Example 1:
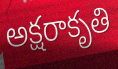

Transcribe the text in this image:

అక్షరాకృతి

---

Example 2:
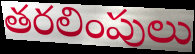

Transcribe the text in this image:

తరలింపులు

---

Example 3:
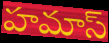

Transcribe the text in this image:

హమాస్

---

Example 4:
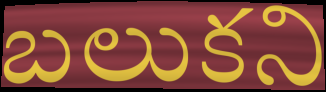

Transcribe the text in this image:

బలుకని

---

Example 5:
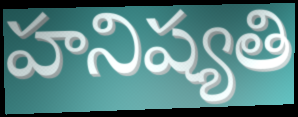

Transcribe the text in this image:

హనిష్యతి